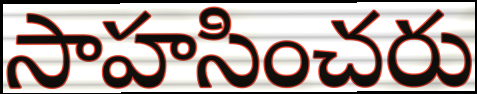
సాహసించరు